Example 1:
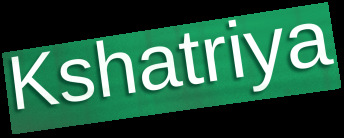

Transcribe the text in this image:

Kshatriya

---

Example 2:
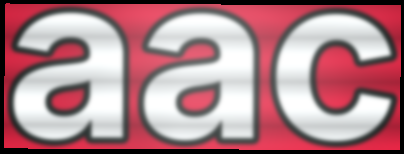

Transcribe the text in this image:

aac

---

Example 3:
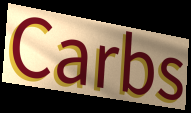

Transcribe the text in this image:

Carbs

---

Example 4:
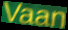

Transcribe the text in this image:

Vaan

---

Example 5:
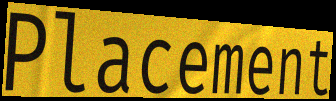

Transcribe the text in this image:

Placement